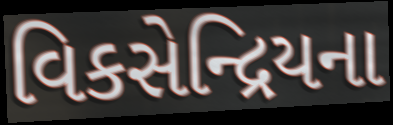
વિકસેન્દ્રિયના